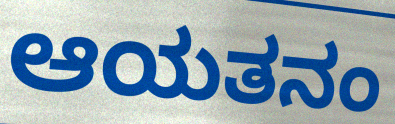
ಆಯತನಂ